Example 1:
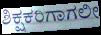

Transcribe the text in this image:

ಶಿಕ್ಷಕರಿಗಾಗಲೀ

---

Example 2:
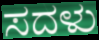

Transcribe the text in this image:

ಸದಳು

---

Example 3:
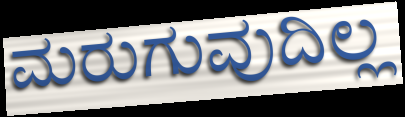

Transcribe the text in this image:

ಮರುಗುವುದಿಲ್ಲ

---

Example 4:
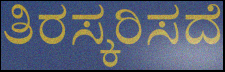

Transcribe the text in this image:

ತಿರಸ್ಕರಿಸದೆ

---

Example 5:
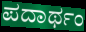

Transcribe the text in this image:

ಪದಾರ್ಥಂ